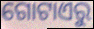
ଗୋଟାଏରୁ